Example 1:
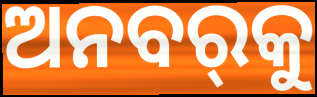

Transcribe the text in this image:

ଅନବର୍‌କୁ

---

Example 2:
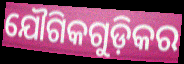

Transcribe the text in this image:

ଯୌଗିକଗୁଡ଼ିକର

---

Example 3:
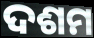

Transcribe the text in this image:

ଦଶମ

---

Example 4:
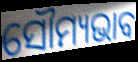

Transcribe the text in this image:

ସୌମ୍ୟଭାବ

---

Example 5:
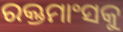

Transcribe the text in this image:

ରକ୍ତମାଂସକୁ